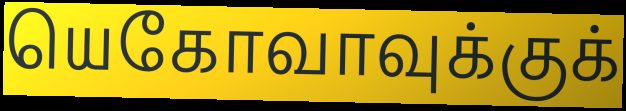
யெகோவாவுக்குக்